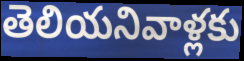
తెలియనివాళ్లకు